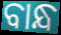
ବାନ୍ଧ